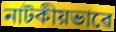
নাটকীয়ভাৱে